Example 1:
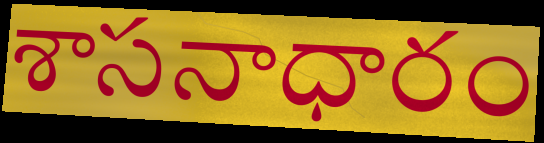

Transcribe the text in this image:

శాసనాధారం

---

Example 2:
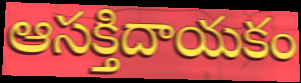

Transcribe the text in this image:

ఆసక్తిదాయకం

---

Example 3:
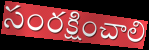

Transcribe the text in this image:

సంరక్షించాలి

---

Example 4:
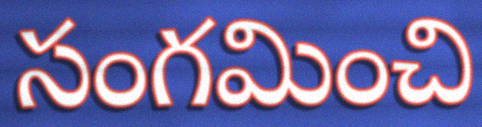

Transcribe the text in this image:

సంగమించి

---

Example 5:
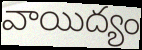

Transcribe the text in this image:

వాయిద్యం